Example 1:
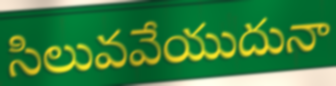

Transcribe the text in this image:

సిలువవేయుదునా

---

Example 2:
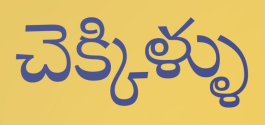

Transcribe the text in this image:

చెక్కిళ్ళు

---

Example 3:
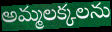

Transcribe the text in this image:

అమ్మలక్కలను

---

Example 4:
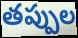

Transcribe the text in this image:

తప్పుల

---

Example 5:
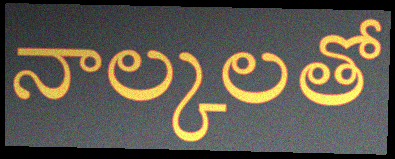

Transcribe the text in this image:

నాల్కలతో